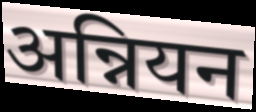
अन्नियन